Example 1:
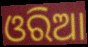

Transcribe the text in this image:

ଓରିଆ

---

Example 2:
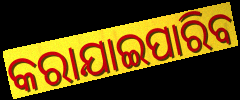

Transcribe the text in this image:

କରାଯାଇପାରିବ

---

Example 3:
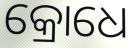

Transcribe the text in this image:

କ୍ରୋଧେ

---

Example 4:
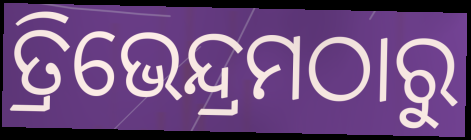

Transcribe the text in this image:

ତ୍ରିଭେନ୍ଦ୍ରମଠାରୁ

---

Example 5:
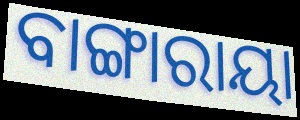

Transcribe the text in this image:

ବାଙ୍ଗାରାୟା